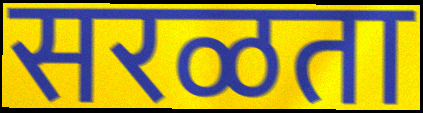
सरळता